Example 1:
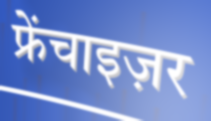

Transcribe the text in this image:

फ्रेंचाइज़र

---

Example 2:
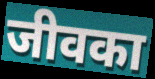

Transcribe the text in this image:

जीवका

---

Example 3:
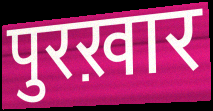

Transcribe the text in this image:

पुरख़ार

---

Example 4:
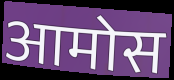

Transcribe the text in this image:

आमोस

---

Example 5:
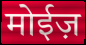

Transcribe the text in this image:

मोईज़